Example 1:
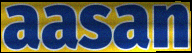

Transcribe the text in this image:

aasan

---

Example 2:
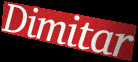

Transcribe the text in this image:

Dimitar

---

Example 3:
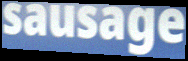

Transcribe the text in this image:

sausage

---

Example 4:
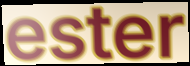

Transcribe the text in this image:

ester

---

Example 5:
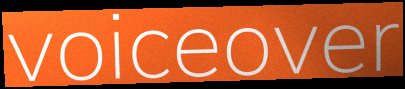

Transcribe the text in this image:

voiceover